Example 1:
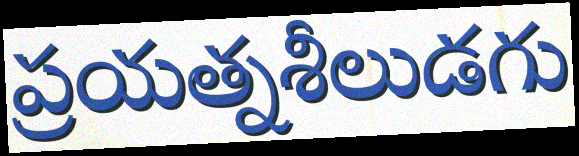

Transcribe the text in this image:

ప్రయత్నశీలుడగు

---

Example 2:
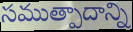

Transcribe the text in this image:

సముత్పాదాన్ని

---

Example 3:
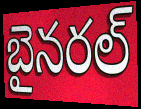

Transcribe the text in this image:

బైనరల్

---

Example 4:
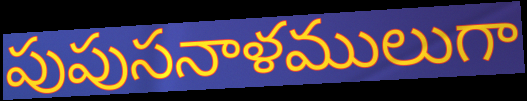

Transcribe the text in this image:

పుపుసనాళములుగా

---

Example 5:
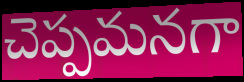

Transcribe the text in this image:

చెప్పమనగా